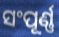
ସଂପୂର୍ଣ୍ଣ